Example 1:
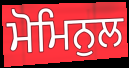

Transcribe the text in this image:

ਮੋਮਿਨੁਲ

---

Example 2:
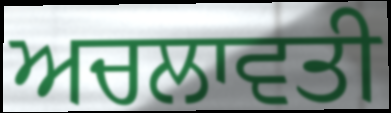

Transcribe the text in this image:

ਅਚਲਾਵਤੀ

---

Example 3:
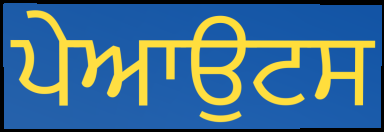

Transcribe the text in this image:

ਪੇਆਉਟਸ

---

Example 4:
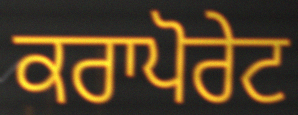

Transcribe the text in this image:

ਕਰਾਪੋਰੇਟ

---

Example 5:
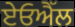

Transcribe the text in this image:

ਏਓਐੱਲ